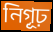
নিগূঢ়